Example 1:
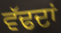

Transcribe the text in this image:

ਵੱਢਦਾਂ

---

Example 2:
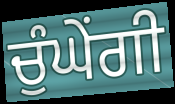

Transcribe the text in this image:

ਚੁੰਘੇਂਗੀ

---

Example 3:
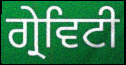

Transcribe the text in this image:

ਗ੍ਰੇਵਿਟੀ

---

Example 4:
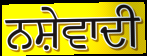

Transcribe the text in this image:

ਨਸ਼ੇਵਾਦੀ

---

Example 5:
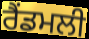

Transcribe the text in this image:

ਰੈਂਡਮਲੀ